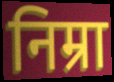
निम्रा